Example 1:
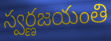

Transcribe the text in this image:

స్వర్ణజయంతి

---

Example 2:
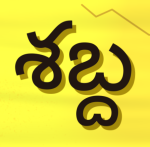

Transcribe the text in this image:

శబ్ద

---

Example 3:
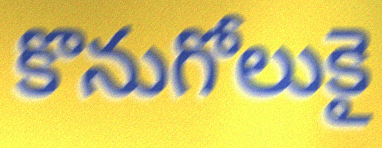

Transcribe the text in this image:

కొనుగోలుకై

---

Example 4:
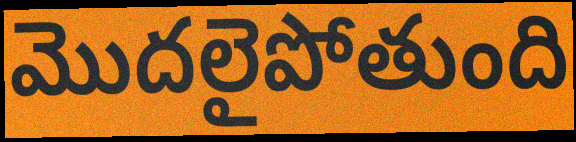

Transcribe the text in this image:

మొదలైపోతుంది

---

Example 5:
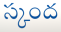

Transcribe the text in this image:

స్కంద